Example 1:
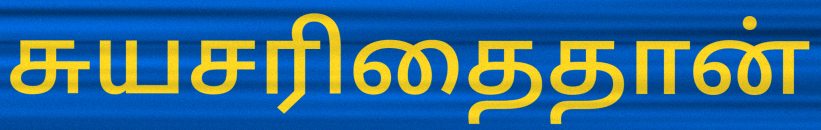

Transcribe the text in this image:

சுயசரிதைதான்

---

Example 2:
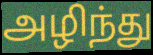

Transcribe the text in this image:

அழிந்து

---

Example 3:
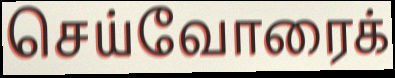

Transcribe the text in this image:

செய்வோரைக்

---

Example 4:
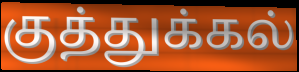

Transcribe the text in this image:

குத்துக்கல்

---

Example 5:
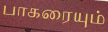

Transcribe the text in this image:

பாகரையும்